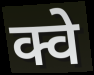
क्वे